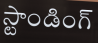
స్టాండింగ్